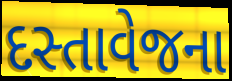
દસ્તાવેજના